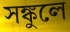
সঙ্কুলে